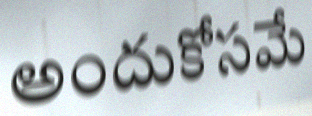
అందుకోసమే